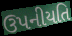
ઉપનીયતિ